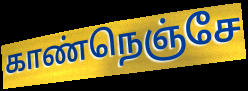
காண்நெஞ்சே